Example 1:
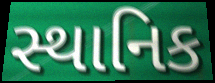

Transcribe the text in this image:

સ્થાનિક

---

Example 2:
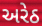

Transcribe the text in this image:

અરેઠ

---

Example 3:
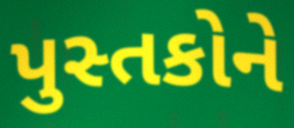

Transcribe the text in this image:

પુસ્તકોને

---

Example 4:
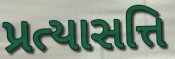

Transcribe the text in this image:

પ્રત્યાસત્તિ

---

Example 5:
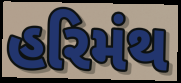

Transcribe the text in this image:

હરિમંથ